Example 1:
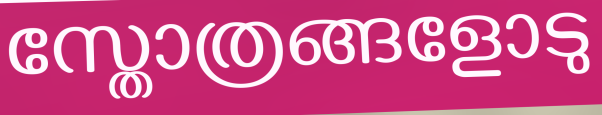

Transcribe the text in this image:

സ്തോത്രങ്ങളോടു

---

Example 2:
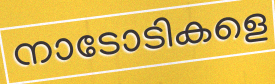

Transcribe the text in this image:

നാടോടികളെ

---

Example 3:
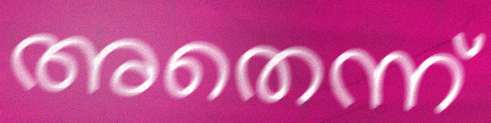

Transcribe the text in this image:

അതെന്ന്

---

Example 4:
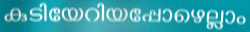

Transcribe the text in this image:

കുടിയേറിയപ്പോഴെല്ലാം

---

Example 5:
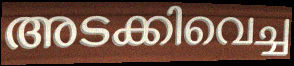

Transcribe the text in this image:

അടക്കിവെച്ച